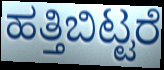
ಹತ್ತಿಬಿಟ್ಟರೆ